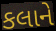
કલાને